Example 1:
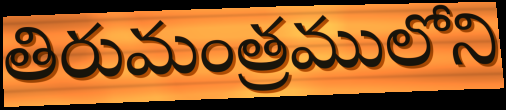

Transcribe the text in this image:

తిరుమంత్రములోని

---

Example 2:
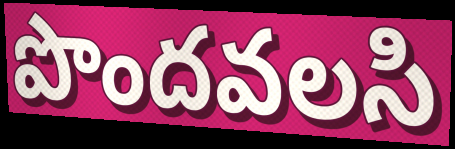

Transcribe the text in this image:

పొందవలసి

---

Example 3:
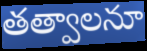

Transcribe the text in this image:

తత్వాలనూ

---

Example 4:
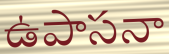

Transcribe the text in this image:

ఉపాసనా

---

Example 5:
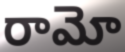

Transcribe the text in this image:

రామో